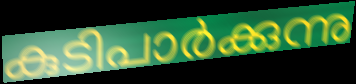
കുടിപാർക്കുന്നു